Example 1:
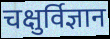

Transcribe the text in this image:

चक्षुर्विज्ञान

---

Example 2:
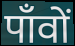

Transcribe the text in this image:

पाँवों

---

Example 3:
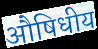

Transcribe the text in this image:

औषिधीय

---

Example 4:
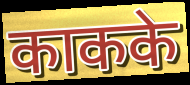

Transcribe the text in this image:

काकके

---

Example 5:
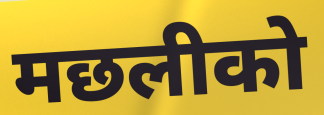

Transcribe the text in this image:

मछलीको